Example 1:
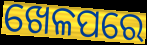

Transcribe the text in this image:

ଖେଳପରେ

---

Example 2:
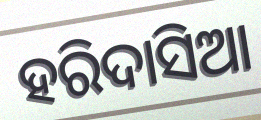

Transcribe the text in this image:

ହରିଦାସିଆ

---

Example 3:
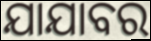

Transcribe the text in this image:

ଯାଯାବର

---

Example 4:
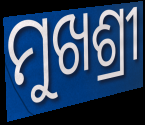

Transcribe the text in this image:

ମୁଖଶ୍ରୀ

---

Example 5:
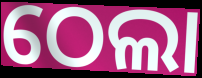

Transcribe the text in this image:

ଠେଲା